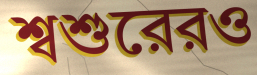
শ্বশুরেরও